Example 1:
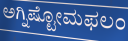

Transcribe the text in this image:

ಅಗ್ನಿಷ್ಟೋಮಫಲಂ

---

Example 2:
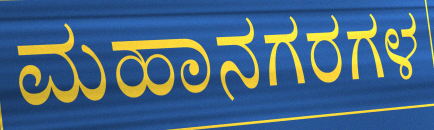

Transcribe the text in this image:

ಮಹಾನಗರಗಳ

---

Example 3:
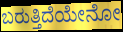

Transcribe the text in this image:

ಬರುತ್ತಿದೆಯೇನೋ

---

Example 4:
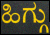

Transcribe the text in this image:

ಹಿಗ್ಗು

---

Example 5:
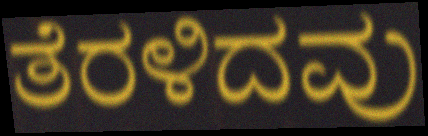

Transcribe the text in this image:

ತೆರಳಿದವು